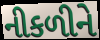
નીકળીને